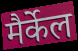
मैर्केल